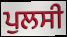
ਪੁਲਸੀ